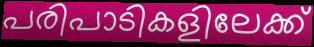
പരിപാടികളിലേക്ക്